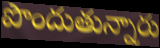
పొందుతున్నారు